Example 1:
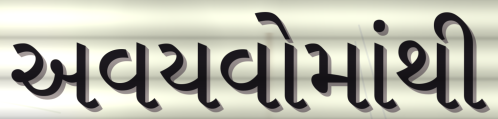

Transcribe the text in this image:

અવયવોમાંથી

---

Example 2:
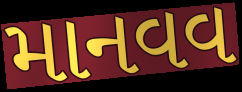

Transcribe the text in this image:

માનવવ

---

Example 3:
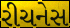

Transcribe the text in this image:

રીચનેસ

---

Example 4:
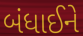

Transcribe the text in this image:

બંધાઈને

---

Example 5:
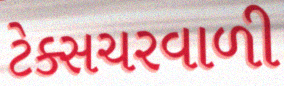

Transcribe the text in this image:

ટેક્સચરવાળી